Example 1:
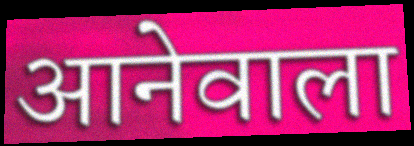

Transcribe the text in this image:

आनेवाला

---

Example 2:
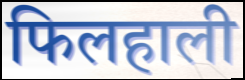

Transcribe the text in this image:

फिलहाली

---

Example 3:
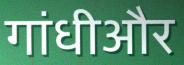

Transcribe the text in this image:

गांधीऔर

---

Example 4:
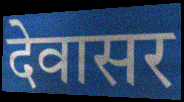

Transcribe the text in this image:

देवासर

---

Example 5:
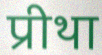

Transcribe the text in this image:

प्रीथा